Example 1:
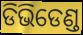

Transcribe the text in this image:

ଡିଭିଡେଣ୍ଡ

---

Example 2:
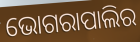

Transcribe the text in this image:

ଭୋଗରାପାଲିର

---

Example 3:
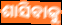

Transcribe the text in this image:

ଶାସିବାକୁ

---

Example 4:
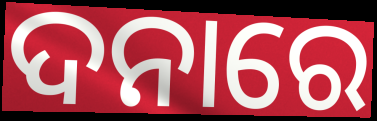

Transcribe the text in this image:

ଦନାରେ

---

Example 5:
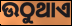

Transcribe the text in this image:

ଉଠୁଥାଏ